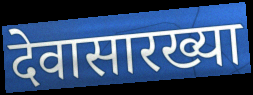
देवासारख्या